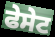
ਫੇਸੇਟ